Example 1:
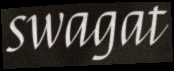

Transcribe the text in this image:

swagat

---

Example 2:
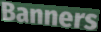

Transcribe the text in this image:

Banners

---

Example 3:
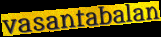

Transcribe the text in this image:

vasantabalan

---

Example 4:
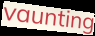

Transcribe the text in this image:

vaunting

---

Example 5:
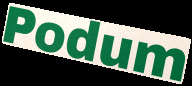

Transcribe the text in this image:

Podum